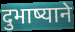
दुभाष्याने